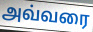
அவ்வரை